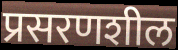
प्रसरणशील